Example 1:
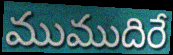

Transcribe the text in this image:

ముముదిరే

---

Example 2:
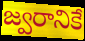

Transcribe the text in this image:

జ్వరానికే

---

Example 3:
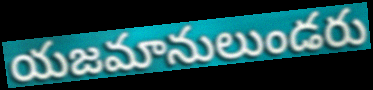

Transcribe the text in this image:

యజమానులుండరు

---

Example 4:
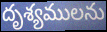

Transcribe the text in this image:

దృశ్యములను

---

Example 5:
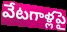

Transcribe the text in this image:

వేటగాళ్లపై